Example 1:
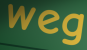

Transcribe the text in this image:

weg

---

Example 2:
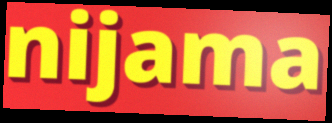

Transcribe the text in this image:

nijama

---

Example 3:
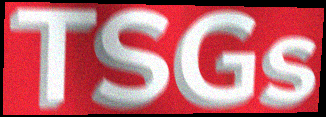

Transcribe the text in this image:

TSGs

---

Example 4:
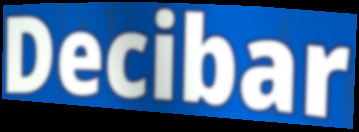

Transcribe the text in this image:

Decibar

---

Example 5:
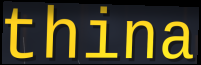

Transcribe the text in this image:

thina